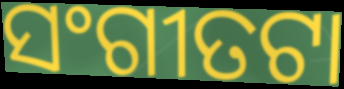
ସଂଗୀତଟା